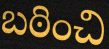
బఠించి